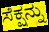
ಸೆಕ್ಷನ್ನು